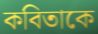
কবিতাকে